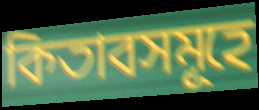
কিতাবসমূহে